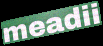
meadii